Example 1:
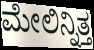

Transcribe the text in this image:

ಮೇಲಿನ್ನಿತ್ತ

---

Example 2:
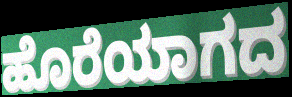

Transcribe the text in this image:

ಹೊರೆಯಾಗದ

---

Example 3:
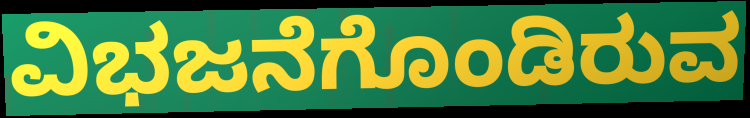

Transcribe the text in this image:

ವಿಭಜನೆಗೊಂಡಿರುವ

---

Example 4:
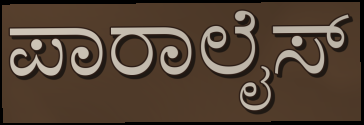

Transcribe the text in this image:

ಪಾರಾಲೈಸ್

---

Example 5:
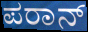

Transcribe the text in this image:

ಪರಾನ್